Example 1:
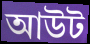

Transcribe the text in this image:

আউট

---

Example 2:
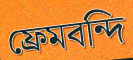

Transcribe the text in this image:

ফ্রেমবন্দি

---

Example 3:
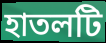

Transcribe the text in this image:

হাতলটি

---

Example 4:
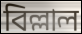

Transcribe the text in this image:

বিল্লাল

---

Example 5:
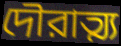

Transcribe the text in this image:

দৌরাত্ম্য